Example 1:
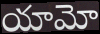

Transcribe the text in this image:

యామో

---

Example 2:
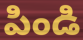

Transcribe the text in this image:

పిండి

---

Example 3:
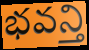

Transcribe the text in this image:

భవన్తి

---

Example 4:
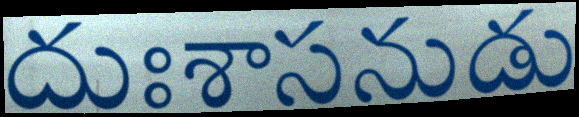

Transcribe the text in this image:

దుఃశాసనుడు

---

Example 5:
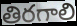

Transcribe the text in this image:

తిరగాలి